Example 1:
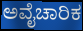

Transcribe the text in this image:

ಅವೈಚಾರಿಕ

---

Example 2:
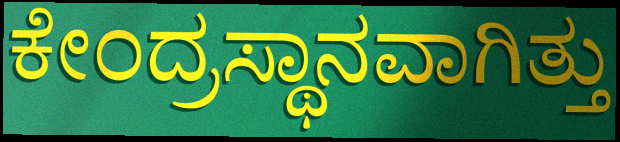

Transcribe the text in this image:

ಕೇಂದ್ರಸ್ಥಾನವಾಗಿತ್ತು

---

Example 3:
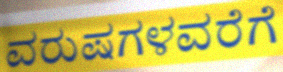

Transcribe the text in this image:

ವರುಷಗಳವರೆಗೆ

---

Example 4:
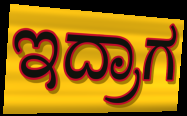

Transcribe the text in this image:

ಇದ್ರಾಗ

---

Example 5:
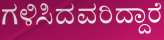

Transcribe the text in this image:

ಗಳಿಸಿದವರಿದ್ದಾರೆ